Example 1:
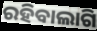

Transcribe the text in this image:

ରହିବାଲାଗି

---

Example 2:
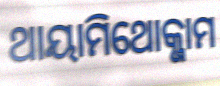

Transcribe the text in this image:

ଥାୟାମିଥୋକ୍ଜାମ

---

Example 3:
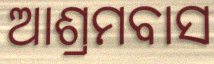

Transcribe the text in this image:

ଆଶ୍ରମବାସ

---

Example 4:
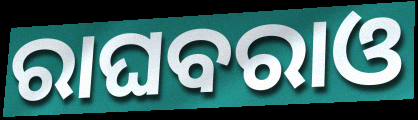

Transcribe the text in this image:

ରାଘବରାଓ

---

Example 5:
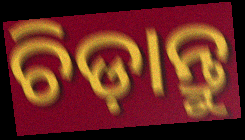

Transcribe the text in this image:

ଚିଡ଼ାନ୍ତୁ